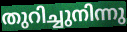
തുറിച്ചുനിന്നു